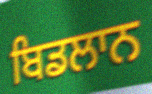
ਬਿਡਲਾਨ